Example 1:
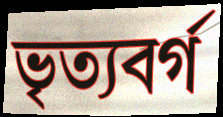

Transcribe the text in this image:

ভৃত্যবর্গ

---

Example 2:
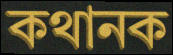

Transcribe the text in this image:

কথানক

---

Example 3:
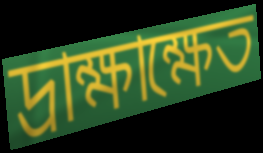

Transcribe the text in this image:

দ্রাক্ষাক্ষেত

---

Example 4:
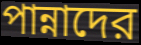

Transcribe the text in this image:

পান্নাদের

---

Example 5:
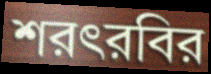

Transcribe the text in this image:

শরৎরবির